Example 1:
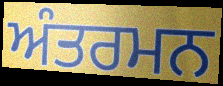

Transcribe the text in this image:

ਅੰਤਰਮਨ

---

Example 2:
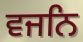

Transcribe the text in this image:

ਵਜਨਿ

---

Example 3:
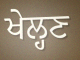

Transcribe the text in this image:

ਖੇਲ੍ਹਣ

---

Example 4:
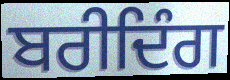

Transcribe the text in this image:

ਬਰੀਦਿੰਗ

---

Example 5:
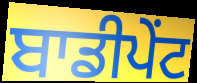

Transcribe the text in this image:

ਬਾਡੀਪੇਂਟ